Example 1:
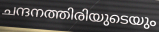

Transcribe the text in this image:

ചന്ദനത്തിരിയുടെയും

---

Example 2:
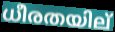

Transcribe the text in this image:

ധീരതയില്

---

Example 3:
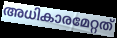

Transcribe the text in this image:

അധികാരമേറ്റത്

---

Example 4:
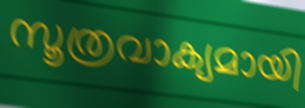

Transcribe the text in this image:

സൂത്രവാക്യമായി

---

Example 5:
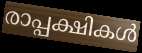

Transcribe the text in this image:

രാപ്പക്ഷികൾ